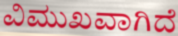
ವಿಮುಖವಾಗಿದೆ